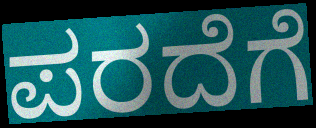
ಪರದೆಗೆ